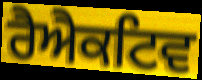
ਰੈਐਕਟਿਵ